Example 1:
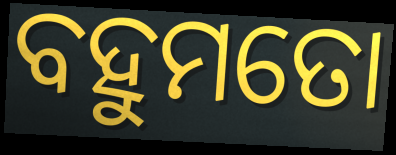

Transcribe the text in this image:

ବହୁମତୋ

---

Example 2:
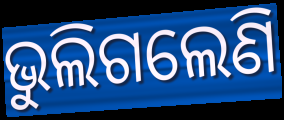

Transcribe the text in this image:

ଭୁଲିଗଲେଣି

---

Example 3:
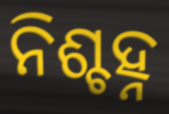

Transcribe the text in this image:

ନିଶ୍ଚହ୍ନ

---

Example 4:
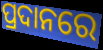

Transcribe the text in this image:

ପ୍ରଦାନରେ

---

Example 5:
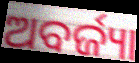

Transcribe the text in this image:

ଅବର୍ଜ୍ୟା